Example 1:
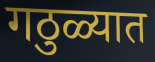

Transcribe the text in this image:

गठुळ्यात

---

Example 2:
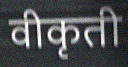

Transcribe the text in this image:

वीकृती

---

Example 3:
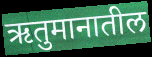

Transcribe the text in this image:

ऋतुमानातील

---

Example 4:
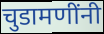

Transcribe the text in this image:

चुडामणींनी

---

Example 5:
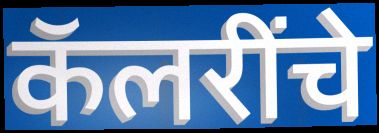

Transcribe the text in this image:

कॅलरींचे